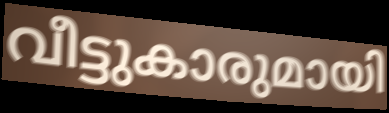
വീട്ടുകാരുമായി